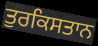
ਤੁਰਕਿਸਤਾਨ